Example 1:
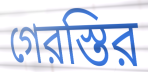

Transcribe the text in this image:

গেরস্তির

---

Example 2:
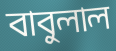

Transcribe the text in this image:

বাবুলাল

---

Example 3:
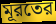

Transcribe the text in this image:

মূরতের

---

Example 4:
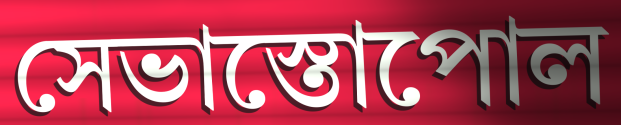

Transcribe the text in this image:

সেভাস্তোপোল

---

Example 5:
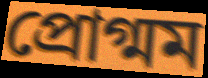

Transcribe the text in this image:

প্রোগ্মম